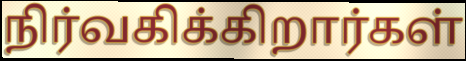
நிர்வகிக்கிறார்கள்